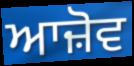
ਆਜ਼ੋਵ